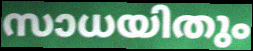
സാധയിതും